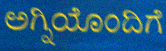
ಅಗ್ನಿಯೊಂದಿಗೆ